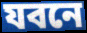
যবনে